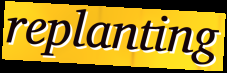
replanting